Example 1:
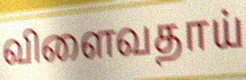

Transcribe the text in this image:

விளைவதாய்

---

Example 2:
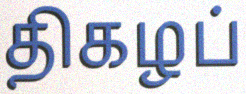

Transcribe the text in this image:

திகழப்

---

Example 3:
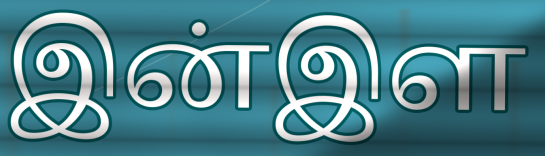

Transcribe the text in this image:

இன்இள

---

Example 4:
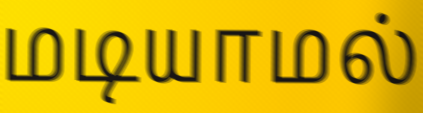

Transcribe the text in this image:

மடியாமல்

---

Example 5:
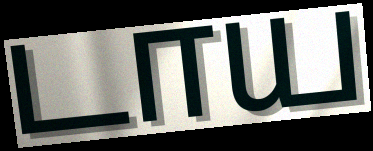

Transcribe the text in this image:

டாய